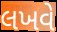
લખવે